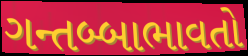
ગન્તબ્બાભાવતો